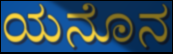
ಯನೊನ